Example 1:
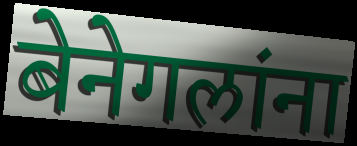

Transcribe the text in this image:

बेनेगलांना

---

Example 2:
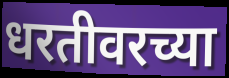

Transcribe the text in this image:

धरतीवरच्या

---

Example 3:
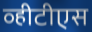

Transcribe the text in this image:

व्हीटीएस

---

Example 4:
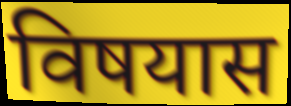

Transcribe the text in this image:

विषयास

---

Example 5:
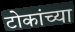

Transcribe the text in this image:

टोकांच्या